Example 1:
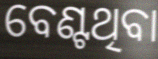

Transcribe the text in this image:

ବେଣ୍ଟଥିବା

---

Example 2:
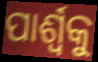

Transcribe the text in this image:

ପାର୍ଶ୍ଵକୁ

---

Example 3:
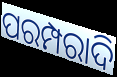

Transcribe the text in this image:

ପରମ୍ପରାଦି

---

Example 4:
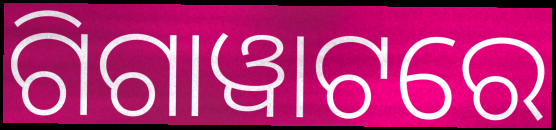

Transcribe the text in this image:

ଗିଗାୱାଟରେ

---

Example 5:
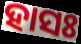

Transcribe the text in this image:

ହାସଃ